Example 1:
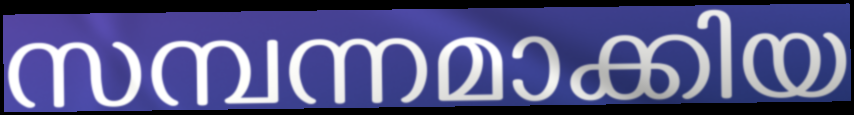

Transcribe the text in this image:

സമ്പന്നമാക്കിയ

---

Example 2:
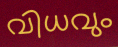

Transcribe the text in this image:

വിധവും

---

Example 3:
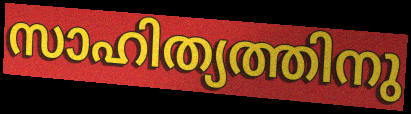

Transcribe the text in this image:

സാഹിത്യത്തിനു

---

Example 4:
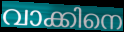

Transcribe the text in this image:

വാക്കിനെ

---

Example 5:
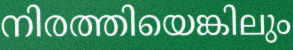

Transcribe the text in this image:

നിരത്തിയെങ്കിലും